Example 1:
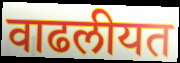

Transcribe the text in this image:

वाढलीयत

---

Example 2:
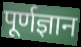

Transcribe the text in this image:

पूर्णज्ञान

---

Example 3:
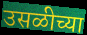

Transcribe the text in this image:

उसळीच्या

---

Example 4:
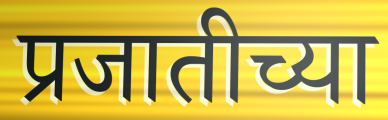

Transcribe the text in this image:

प्रजातीच्या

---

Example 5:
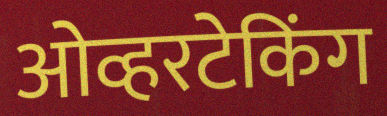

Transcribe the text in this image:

ओव्हरटेकिंग